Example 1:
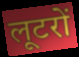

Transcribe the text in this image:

लूटरों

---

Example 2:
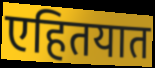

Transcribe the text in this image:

एहितयात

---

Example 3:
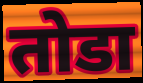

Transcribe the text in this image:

तोडा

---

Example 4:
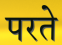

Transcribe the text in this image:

परते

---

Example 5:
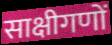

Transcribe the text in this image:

साक्षीगणों